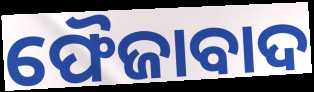
ଫୈଜାବାଦ